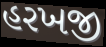
હરખજી